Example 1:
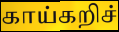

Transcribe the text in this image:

காய்கறிச்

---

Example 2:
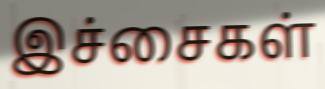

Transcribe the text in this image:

இச்சைகள்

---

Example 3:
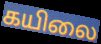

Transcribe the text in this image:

கயிலை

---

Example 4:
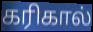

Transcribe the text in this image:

கரிகால்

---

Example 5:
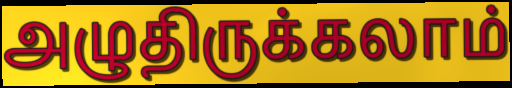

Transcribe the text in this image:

அழுதிருக்கலாம்